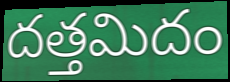
దత్తమిదం